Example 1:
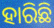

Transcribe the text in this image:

ହାରିଛି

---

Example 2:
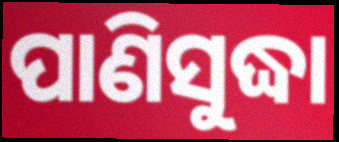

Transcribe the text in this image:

ପାଣିସୁଦ୍ଧା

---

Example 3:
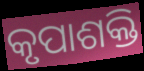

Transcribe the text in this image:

କୃପାଶକ୍ତି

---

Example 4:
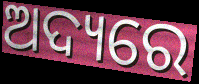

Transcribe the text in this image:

ଅଦ୍ୟରେ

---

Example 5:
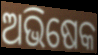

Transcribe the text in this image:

ଅଭିଷେକ